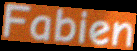
Fabien